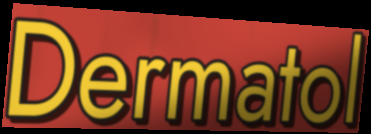
Dermatol